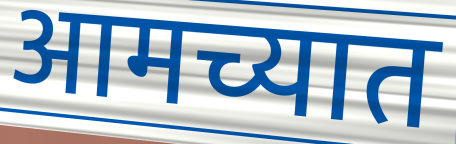
आमच्यात